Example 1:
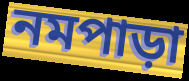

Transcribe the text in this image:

নমপাড়া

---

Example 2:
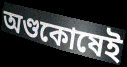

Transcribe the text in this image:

অণ্ডকোষেই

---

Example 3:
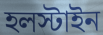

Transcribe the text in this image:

হলস্টাইন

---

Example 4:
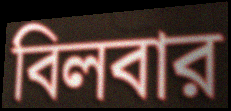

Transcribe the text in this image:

বিলবার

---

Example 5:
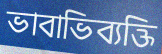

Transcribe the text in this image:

ভাবাভিব্যক্তি